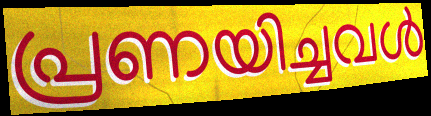
പ്രണയിച്ചവൾ